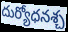
దుర్యోధనశ్చ